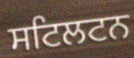
ਸਟਿਲਟਨ